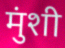
मुंशी